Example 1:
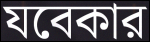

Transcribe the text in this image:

যবেকার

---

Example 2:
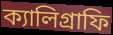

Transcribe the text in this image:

ক্যালিগ্রাফি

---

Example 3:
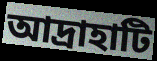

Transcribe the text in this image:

আদ্রাহাটি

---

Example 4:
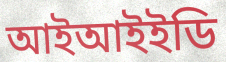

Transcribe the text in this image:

আইআইইডি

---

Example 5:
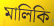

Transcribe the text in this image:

মালিকি